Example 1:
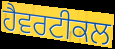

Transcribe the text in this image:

ਹੈਵਰਟੀਕਲ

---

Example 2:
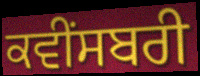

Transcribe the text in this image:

ਕਵੀਂਸਬਰੀ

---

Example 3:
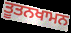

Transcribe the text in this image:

ਤੂਤਨਖਾਮਨ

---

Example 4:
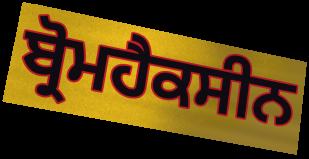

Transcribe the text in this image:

ਬ੍ਰੋਮਹੈਕਸੀਨ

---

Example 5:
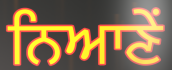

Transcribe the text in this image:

ਨਿਆਣੇਂ